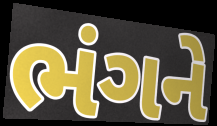
ભંગને